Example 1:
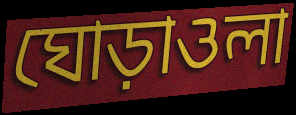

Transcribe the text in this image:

ঘোড়াওলা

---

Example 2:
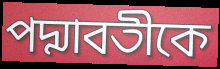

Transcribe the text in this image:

পদ্মাবতীকে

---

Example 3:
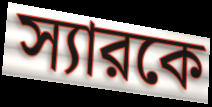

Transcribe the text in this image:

স্যারকে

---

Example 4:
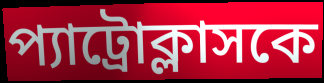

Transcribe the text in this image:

প্যাট্রোক্লাসকে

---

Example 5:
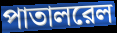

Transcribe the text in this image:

পাতালরেল